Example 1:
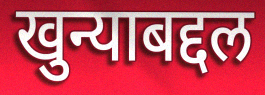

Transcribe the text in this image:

खुन्याबद्दल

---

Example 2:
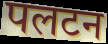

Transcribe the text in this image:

पलटन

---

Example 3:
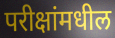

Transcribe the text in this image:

परीक्षांमधील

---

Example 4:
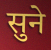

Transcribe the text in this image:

सुने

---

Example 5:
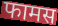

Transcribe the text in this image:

फामस